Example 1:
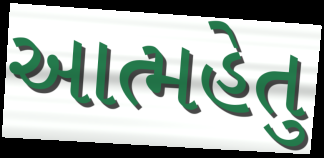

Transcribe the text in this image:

આત્મહેતુ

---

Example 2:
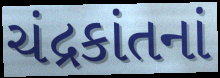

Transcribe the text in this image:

ચંદ્રકાંતનાં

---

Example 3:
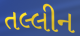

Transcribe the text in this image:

તલ્લીન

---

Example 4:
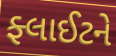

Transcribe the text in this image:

ફ્લાઈટને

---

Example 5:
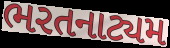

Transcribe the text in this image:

ભરતનાટ્યમ